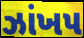
ઝાંખપ